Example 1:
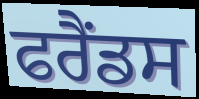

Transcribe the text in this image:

ਫਰੈਂਡਸ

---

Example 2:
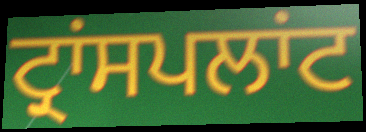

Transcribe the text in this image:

ਟ੍ਰਾਂਸਪਲਾਂਟ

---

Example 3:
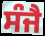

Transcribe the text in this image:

ਸੰਜੈ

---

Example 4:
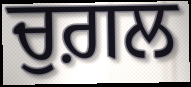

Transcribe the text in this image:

ਚੁਗ਼ਲ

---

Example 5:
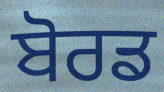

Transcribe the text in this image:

ਬੋਰਡ